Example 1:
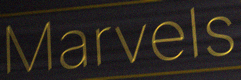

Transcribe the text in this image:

Marvels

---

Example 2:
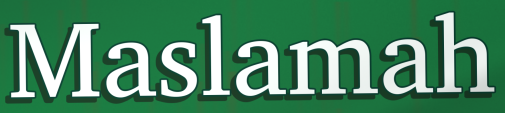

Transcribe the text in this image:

Maslamah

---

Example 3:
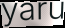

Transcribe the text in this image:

yaru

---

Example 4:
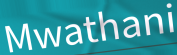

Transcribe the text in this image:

Mwathani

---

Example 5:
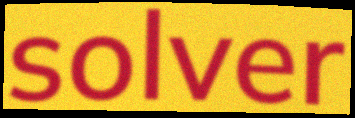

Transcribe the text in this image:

solver